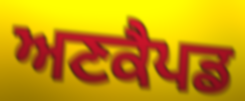
ਅਣਕੈਪਡ